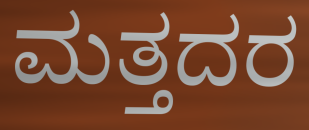
ಮತ್ತದರ